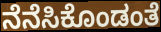
ನೆನೆಸಿಕೊಂಡಂತೆ